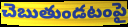
చెబుతుండటంపై